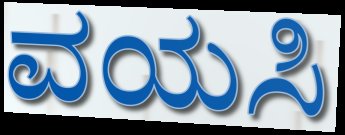
ವಯಸಿ